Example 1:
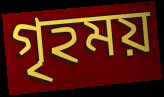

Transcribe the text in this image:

গৃহময়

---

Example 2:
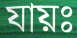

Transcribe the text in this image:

যায়ঃ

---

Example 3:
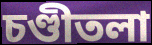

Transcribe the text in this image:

চণ্ডীতলা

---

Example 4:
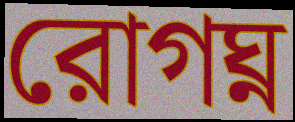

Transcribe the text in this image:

রোগঘ্ন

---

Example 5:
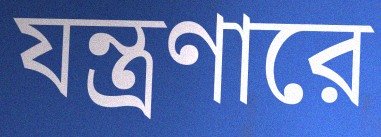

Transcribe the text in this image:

যন্ত্রণারে